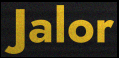
Jalor